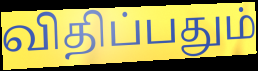
விதிப்பதும்